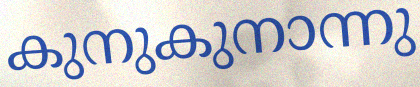
കുനുകുനാന്നു